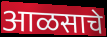
आळसाचे